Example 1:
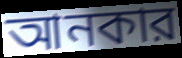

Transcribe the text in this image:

আনকার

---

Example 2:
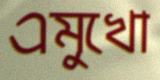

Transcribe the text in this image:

এমুখো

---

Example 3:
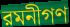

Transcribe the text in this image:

রমনীগণ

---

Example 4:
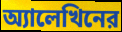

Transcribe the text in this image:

অ্যালেখিনের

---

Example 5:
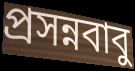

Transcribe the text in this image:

প্রসন্নবাবু